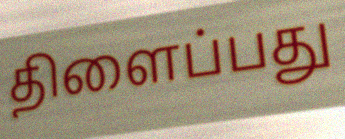
திளைப்பது